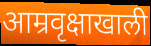
आम्रवृक्षाखाली